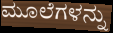
ಮೂಲೆಗಳನ್ನು